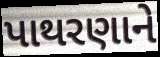
પાથરણાને